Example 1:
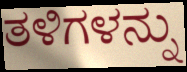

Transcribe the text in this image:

ತಳಿಗಳನ್ನು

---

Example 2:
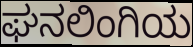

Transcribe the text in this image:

ಘನಲಿಂಗಿಯ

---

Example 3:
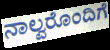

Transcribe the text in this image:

ನಾಲ್ವರೊಂದಿಗೆ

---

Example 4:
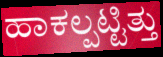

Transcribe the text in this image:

ಹಾಕಲ್ಪಟ್ಟಿತ್ತು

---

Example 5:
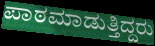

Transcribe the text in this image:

ಪಾಠಮಾಡುತ್ತಿದ್ದರು